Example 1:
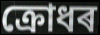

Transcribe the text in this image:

ক্ৰোধৰ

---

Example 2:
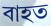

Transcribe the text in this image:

বাহত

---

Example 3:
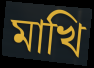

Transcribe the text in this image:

মাখি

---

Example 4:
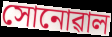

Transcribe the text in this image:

সোনোৱাল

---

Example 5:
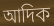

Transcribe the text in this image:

আদিক